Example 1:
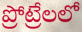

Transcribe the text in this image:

ప్రోట్రేలలో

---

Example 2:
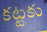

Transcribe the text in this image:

కట్టకు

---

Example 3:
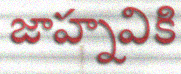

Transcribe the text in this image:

జాహ్నవికి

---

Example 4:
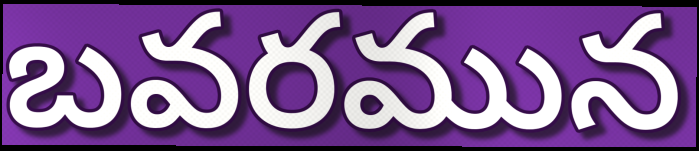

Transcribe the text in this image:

బవరమున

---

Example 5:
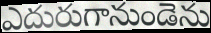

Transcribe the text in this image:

ఎదురుగానుండెను